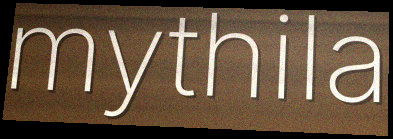
mythila